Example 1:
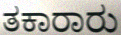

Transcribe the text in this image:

ತಕಾರಾರು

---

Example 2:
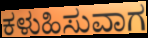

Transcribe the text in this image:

ಕಳುಹಿಸುವಾಗ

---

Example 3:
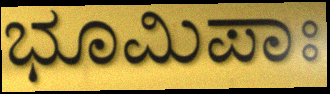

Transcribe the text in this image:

ಭೂಮಿಪಾಃ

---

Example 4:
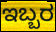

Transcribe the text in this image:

ಇಬ್ಬರ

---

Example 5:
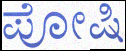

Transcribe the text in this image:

ಪೋಷಿ